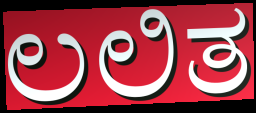
ಲಲಿತ